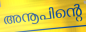
അനൂപിന്റെ